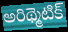
అరిథ్మెటిక్